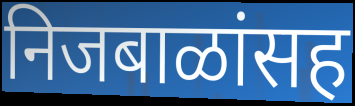
निजबाळांसह